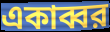
একাব্বর